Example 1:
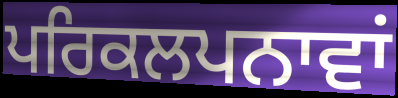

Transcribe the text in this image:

ਪਰਿਕਲਪਨਾਵਾਂ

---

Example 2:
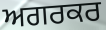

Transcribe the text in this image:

ਅਗਰਕਰ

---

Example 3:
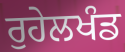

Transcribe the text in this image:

ਰੁਹੇਲਖੰਡ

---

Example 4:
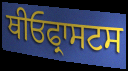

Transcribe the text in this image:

ਥੀਓਫ੍ਰਾਸਟਸ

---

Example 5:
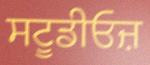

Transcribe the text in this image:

ਸਟੂਡੀਓਜ਼